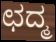
ಛದ್ಮ